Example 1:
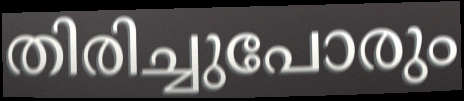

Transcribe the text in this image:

തിരിച്ചുപോരും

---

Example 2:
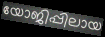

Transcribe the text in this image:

യോജിപ്പിലായ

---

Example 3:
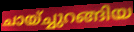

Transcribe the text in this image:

ചായ്ച്ചുറങ്ങിയ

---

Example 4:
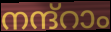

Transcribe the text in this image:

നന്ദ്റാം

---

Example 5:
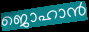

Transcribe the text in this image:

ജൊഹാൻ